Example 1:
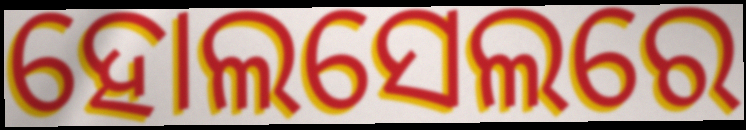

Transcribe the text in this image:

ହୋଲସେଲରେ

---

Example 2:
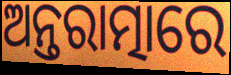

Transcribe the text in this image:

ଅନ୍ତରାତ୍ମାରେ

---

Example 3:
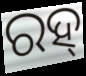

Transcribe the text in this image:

ରହ୍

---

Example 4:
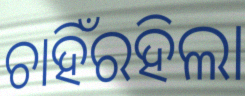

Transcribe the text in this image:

ଚାହିଁରହିଲା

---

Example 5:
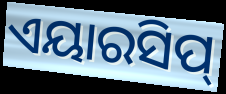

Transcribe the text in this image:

ଏୟାରସିପ୍